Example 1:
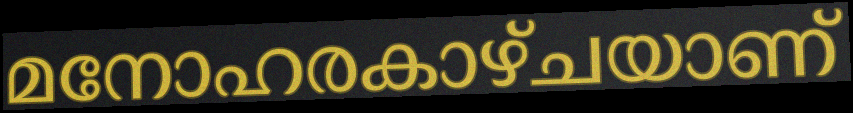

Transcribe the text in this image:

മനോഹരകാഴ്ചയാണ്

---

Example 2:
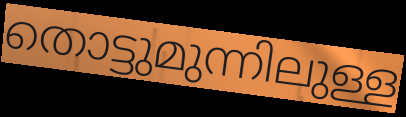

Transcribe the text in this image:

തൊട്ടുമുന്നിലുള്ള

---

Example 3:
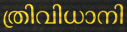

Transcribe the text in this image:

ത്രിവിധാനി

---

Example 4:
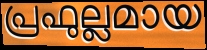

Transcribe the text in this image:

പ്രഫുല്ലമായ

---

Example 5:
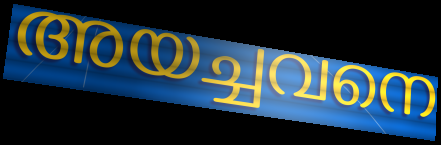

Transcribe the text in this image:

അയച്ചവനെ